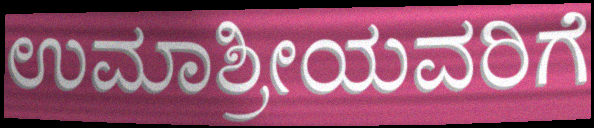
ಉಮಾಶ್ರೀಯವರಿಗೆ